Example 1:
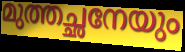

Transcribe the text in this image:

മുത്തച്ഛനേയും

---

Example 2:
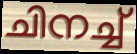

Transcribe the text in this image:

ചിനച്ച്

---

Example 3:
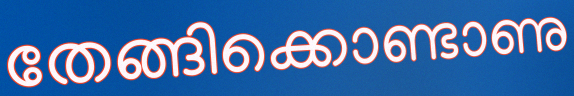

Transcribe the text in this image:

തേങ്ങിക്കൊണ്ടാണു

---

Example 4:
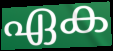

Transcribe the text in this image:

ഏക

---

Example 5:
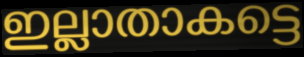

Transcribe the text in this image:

ഇല്ലാതാകട്ടെ